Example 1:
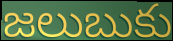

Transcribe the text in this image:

జలుబుకు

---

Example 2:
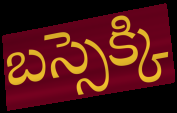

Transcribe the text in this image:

బస్సెక్కి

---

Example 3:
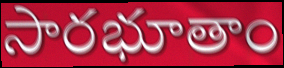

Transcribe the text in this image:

సారభూతాం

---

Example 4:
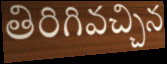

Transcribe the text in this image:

తిరిగివచ్చిన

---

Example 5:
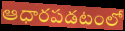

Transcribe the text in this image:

ఆధారపడటంలో